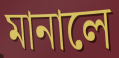
মানালে